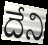
దేని